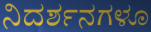
ನಿದರ್ಶನಗಳೂ